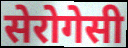
सेरोगेसी